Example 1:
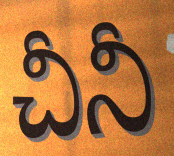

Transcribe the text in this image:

చీనీ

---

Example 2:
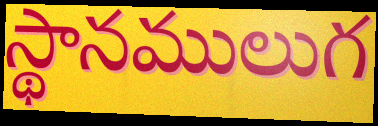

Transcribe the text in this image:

స్థానములుగ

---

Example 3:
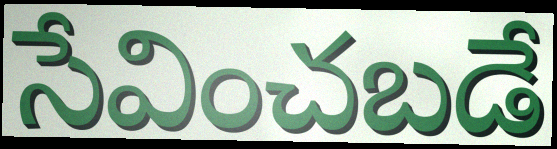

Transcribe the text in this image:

సేవించబడే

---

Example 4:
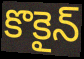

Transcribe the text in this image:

కొకైన్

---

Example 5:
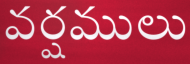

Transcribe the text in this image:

వర్షములు